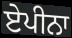
ਏਪੀਨਾ